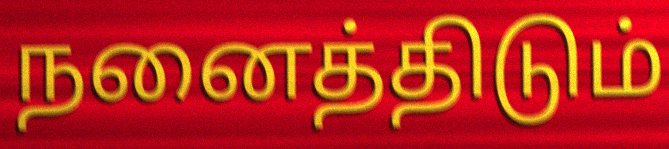
நனைத்திடும்